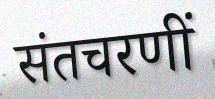
संतचरणीं